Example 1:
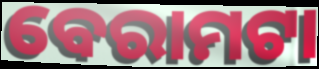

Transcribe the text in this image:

ବେରାମଟା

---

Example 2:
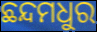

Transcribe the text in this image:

ଛନ୍ଦମଧୁର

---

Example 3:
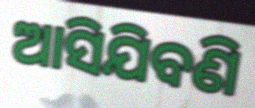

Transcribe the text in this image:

ଆସିଯିବଣି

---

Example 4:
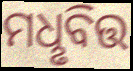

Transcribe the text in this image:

ମଧୢବିତ୍ତ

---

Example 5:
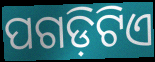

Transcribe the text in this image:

ପଗଡ଼ିଟିଏ